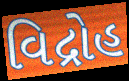
વિદ્રોહ